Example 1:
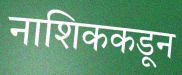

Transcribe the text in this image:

नाशिककडून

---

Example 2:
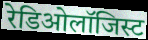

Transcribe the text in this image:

रेडिओलॉजिस्ट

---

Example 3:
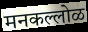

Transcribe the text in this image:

मनकल्लोळ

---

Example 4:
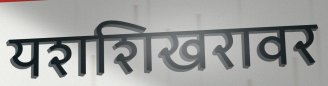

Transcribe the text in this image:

यशशिखरावर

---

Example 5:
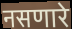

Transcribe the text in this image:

नसणारे